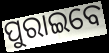
ପୁରାଇବେ